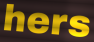
hers